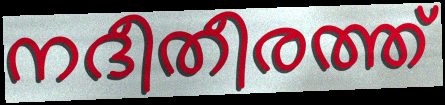
നദീതീരത്ത്